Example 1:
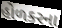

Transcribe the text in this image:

હોળકરના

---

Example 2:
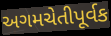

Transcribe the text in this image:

અગમચેતીપૂર્વક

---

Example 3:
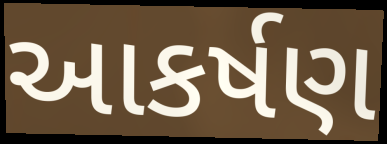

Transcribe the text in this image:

આકર્ષણ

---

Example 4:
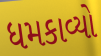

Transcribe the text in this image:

ધમકાવ્યો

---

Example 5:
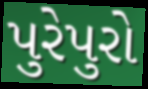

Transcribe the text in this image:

પુરેપુરો